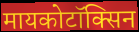
मायकोटॉक्सिन